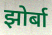
झोर्बा